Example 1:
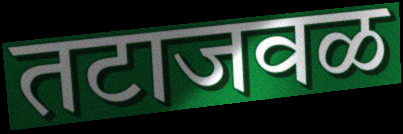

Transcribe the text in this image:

तटाजवळ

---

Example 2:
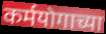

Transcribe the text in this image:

कर्मयोगाच्या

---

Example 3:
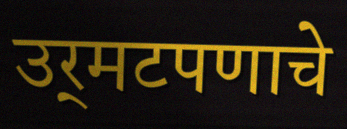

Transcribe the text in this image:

उर्मटपणाचे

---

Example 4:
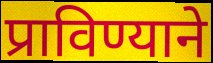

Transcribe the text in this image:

प्राविण्याने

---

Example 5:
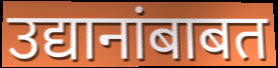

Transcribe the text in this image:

उद्यानांबाबत